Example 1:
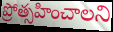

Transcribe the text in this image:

ప్రోత్సహించాలని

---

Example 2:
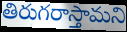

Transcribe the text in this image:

తిరుగరాస్తామని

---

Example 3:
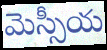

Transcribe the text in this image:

మెస్సీయ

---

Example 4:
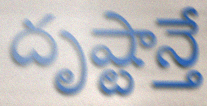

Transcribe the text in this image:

దృష్టాన్తే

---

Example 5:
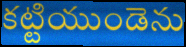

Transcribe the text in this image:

కట్టియుండెను